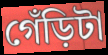
গেঁড়িটা